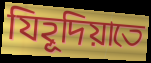
যিহূদিয়াতে